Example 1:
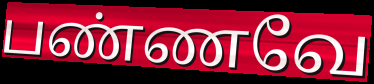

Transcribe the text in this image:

பண்ணவே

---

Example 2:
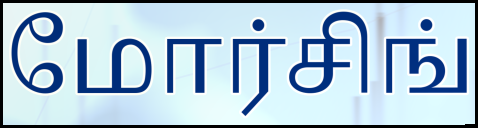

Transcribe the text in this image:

மோர்சிங்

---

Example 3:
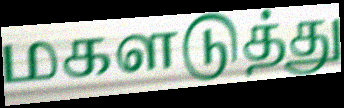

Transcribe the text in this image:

மகளடுத்து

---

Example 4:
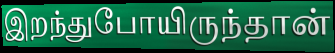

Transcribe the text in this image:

இறந்துபோயிருந்தான்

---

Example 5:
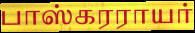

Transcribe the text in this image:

பாஸ்கரராயர்